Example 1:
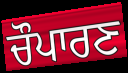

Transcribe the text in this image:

ਚੌਪਾਰਣ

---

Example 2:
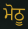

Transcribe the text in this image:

ਮੋਠੂ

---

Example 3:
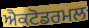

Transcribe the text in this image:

ਐਕਟੋਡਰਮਲ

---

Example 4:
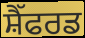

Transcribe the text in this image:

ਸ਼ੈੱਫਰਡ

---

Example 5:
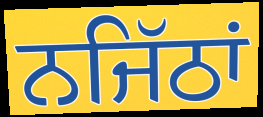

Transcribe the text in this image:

ਨਜਿੱਠਾਂ